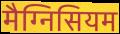
मैग्निसियम